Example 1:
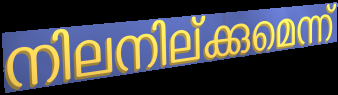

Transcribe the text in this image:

നിലനില്ക്കുമെന്ന്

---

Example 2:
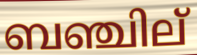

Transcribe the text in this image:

ബഞ്ചില്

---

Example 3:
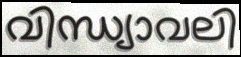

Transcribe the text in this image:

വിന്ധ്യാവലി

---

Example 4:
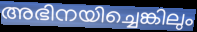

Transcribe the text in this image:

അഭിനയിച്ചെങ്കിലും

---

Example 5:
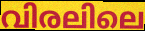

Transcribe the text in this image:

വിരലിലെ